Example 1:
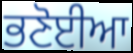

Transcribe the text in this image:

ਭਣੋਈਆ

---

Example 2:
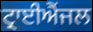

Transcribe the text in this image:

ਟ੍ਰਾਈਐਂਜਲ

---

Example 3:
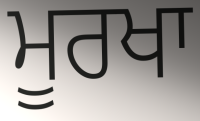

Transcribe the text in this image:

ਮੂਰਖਾ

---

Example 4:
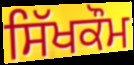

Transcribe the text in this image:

ਸਿੱਖਕੌਮ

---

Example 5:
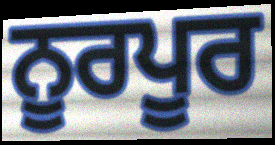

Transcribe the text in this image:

ਨੂਰਪੂਰ